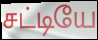
சட்டியே